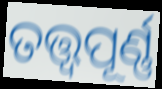
ତତ୍ତ୍ୱପୂର୍ଣ୍ଣ